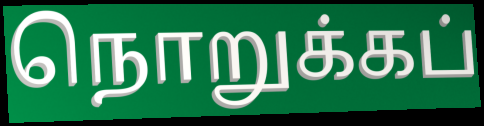
நொறுக்கப்